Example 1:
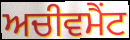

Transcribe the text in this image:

ਅਚੀਵਮੈਂਟ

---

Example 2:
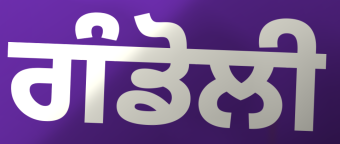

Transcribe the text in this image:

ਗੰਡੋਲੀ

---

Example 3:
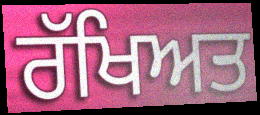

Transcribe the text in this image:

ਰੱਖਿਅਤ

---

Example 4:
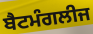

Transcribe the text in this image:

ਬੈਟਮੰਗਲੀਜ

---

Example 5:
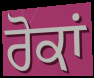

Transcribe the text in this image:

ਰੋਕਾਂ